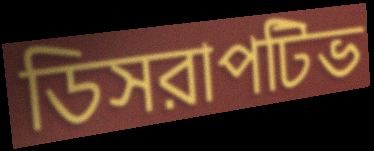
ডিসরাপটিভ